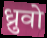
ध्रुवो